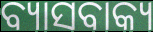
ବ୍ୟାସବାକ୍ୟ